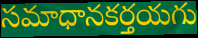
సమాధానకర్తయగు